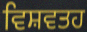
ਵਿਸ਼ਵਤਹ